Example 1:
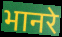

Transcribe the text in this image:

भानरे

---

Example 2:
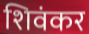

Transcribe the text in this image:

शिवंकर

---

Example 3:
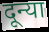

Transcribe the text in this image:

दून्या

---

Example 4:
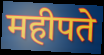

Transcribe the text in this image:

महीपते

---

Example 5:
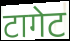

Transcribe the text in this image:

टागेट